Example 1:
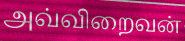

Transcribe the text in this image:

அவ்விறைவன்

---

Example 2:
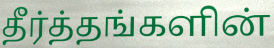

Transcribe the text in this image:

தீர்த்தங்களின்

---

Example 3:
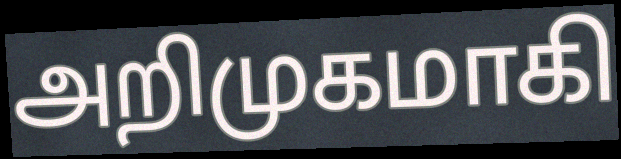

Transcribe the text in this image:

அறிமுகமாகி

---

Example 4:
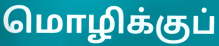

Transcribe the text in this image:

மொழிக்குப்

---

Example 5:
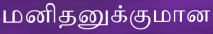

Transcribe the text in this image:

மனிதனுக்குமான